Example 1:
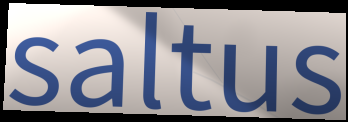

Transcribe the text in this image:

saltus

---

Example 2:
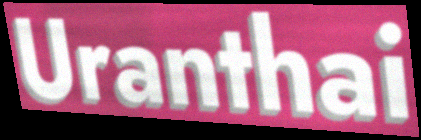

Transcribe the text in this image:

Uranthai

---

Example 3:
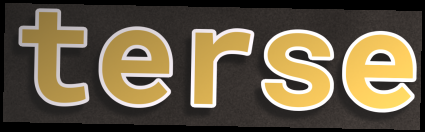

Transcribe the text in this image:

terse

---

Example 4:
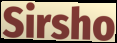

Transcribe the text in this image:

Sirsho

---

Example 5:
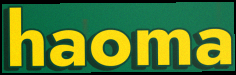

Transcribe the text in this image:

haoma